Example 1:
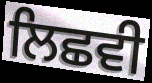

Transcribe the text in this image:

ਲਿਛਵੀ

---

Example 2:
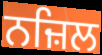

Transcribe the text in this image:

ਨਜ਼ਿਲ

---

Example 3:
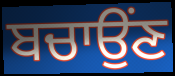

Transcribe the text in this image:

ਬਚਾਉਂਣ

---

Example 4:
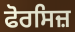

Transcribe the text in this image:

ਫੋਰਸਿਜ਼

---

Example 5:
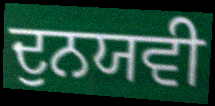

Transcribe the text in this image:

ਦੁਨਯਵੀ